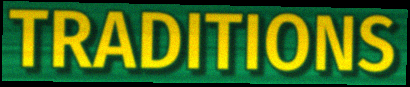
TRADITIONS